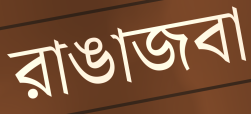
রাঙাজবা